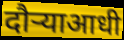
दौऱ्याआधी